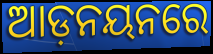
ଆଡ଼ନୟନରେ